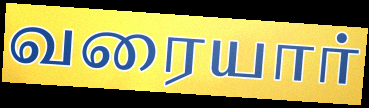
வரையார்